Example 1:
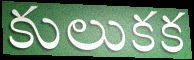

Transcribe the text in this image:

కులుకక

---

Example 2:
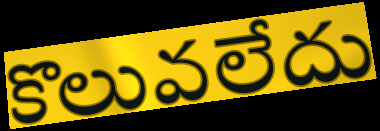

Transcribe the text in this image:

కొలువలేదు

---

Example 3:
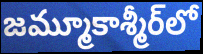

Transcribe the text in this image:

జమ్మూకాశ్మీర్‌లో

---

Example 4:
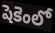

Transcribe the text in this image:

షెకెంలో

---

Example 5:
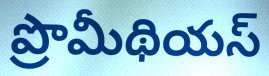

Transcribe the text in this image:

ప్రొమీథియస్